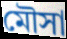
মৌসা